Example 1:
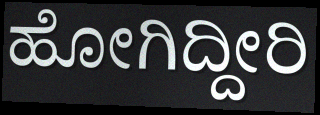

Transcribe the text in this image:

ಹೋಗಿದ್ದೀರಿ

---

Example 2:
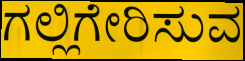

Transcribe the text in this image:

ಗಲ್ಲಿಗೇರಿಸುವ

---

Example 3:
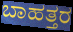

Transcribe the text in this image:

ಬಾಹತ್ತರ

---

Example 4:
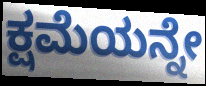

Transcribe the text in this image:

ಕ್ಷಮೆಯನ್ನೇ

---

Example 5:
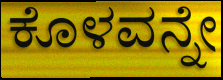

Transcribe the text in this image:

ಕೊಳವನ್ನೇ